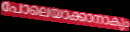
പോലെയാക്കാനാകും